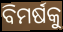
ବିମର୍ଷକୁ